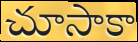
చూసాకా